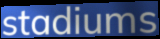
stadiums